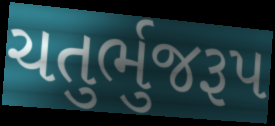
ચતુર્ભુજરૂપ